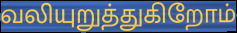
வலியுறுத்துகிறோம்